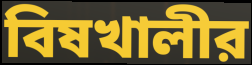
বিষখালীর